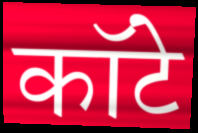
कॉटे